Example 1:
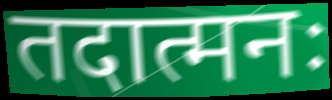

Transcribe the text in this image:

तदात्मनः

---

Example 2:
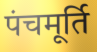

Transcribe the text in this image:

पंचमूर्ति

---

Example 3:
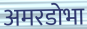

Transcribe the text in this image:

अमरडोभा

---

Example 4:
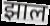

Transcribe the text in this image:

झाल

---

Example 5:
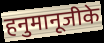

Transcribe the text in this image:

हनुमानूजीके